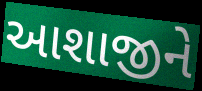
આશાજીને